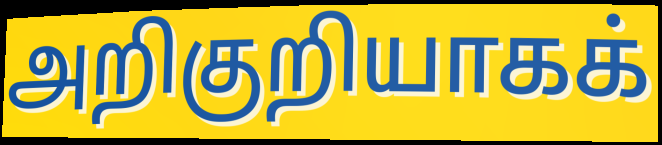
அறிகுறியாகக்